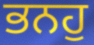
ਭਨਹੁ